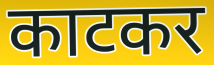
काटकर